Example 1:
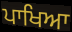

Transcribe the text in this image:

ਪਾਖਿਆ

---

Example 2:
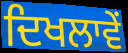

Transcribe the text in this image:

ਦਿਖਲਾਵੇਂ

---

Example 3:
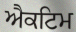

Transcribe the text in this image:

ਐਕਟਿਮ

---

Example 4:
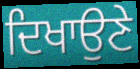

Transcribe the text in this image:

ਦਿਖਾਉਣੇ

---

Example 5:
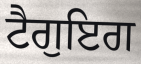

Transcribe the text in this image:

ਟੈਗੁਇਗ